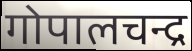
गोपालचन्द्र